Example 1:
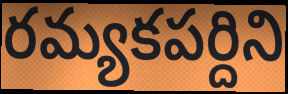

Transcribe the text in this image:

రమ్యకపర్దిని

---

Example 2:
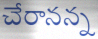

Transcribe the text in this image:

చేరానన్న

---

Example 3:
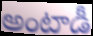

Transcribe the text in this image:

అంటాడీ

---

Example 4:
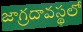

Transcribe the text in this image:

జాగ్రదావస్థలో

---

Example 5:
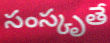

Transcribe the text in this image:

సంస్కృతే